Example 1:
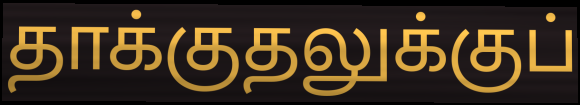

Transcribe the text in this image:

தாக்குதலுக்குப்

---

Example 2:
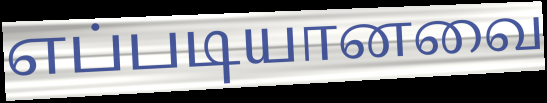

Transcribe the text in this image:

எப்படியானவை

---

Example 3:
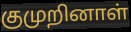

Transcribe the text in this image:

குமுறினாள்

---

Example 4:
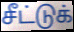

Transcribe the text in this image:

சீட்டுக்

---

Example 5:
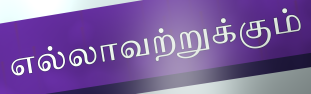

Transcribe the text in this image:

எல்லாவற்றுக்கும்